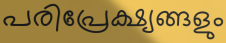
പരിപ്രേക്ഷ്യങ്ങളും